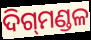
ଦିଗ୍‌ମଣ୍ଡଳ